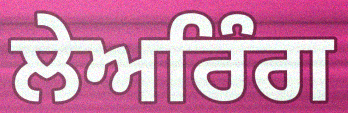
ਲੇਅਰਿੰਗ